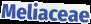
Meliaceae